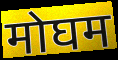
मोघम